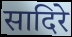
सादिरे